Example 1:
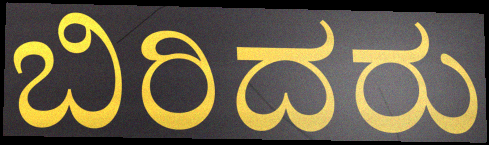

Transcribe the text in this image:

ಬಿರಿದರು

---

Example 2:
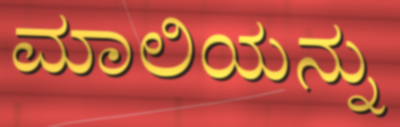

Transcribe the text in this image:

ಮಾಲಿಯನ್ನು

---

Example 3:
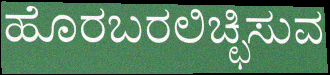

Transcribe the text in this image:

ಹೊರಬರಲಿಚ್ಛಿಸುವ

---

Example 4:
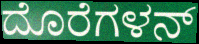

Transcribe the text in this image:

ದೊರೆಗಳನ್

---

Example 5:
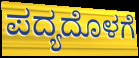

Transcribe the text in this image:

ಪದ್ಯದೊಳಗೆ